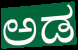
ಅಡ